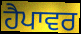
ਹੈਪਾਵਰ